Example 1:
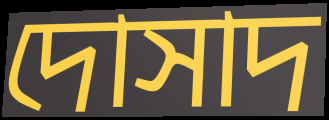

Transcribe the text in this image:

দোসাদ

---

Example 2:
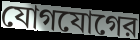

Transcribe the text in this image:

যোগযোগের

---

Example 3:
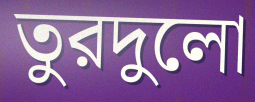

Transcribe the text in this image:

তুরদুলো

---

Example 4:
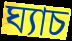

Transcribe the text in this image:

ঘ্যাচ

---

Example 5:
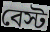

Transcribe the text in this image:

বেস্ট